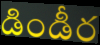
డిండీర